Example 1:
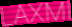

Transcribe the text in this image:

LAXMI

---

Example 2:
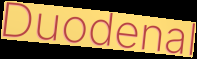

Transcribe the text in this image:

Duodenal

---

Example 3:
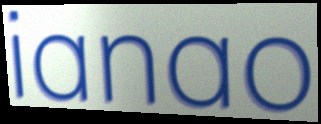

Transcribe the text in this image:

ianao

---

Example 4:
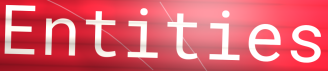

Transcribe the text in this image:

Entities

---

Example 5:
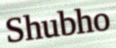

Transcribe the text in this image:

Shubho